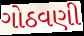
ગોઠવણી